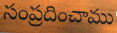
సంప్రదించాము